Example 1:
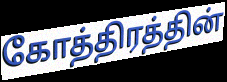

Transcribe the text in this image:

கோத்திரத்தின்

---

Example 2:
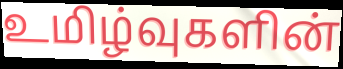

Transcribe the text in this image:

உமிழ்வுகளின்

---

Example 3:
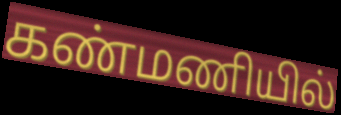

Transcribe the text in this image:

கண்மணியில்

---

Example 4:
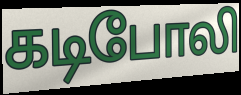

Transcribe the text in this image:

கடிபோலி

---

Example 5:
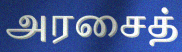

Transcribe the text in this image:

அரசைத்